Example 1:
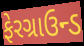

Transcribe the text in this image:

ફેરગ્રાઉન્ડ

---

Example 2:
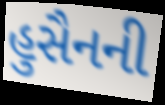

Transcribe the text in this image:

હુસૈનની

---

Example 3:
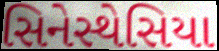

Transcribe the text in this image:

સિનેસ્થેસિયા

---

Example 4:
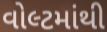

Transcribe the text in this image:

વોલ્ટમાંથી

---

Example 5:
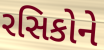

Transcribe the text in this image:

રસિકોને